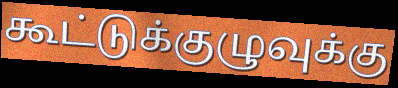
கூட்டுக்குழுவுக்கு